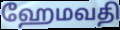
ஹேமவதி